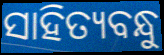
ସାହିତ୍ୟବନ୍ଧୁ